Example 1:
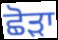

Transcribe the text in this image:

ਛੋੜਾ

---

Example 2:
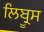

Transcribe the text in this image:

ਲਿਬ੍ਰੂਸ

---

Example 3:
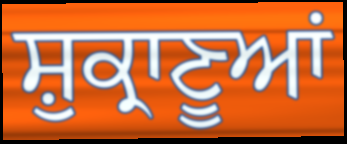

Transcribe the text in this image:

ਸ਼ੁਕ੍ਰਾਣੂਆਂ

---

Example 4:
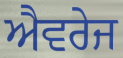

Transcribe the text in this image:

ਐਵਰੇਜ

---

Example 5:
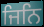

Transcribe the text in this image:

ਜਿਨਿ